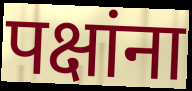
पक्षांना